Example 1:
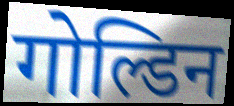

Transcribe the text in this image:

गोल्डिन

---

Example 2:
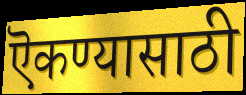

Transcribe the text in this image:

ऎकण्यासाठी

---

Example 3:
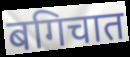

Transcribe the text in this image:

बगिचात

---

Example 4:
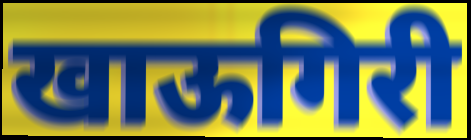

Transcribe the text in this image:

खाऊगिरी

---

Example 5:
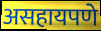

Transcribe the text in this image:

असहायपणे